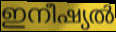
ഇനീഷ്യൽ